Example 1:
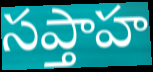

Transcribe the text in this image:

సప్తాహ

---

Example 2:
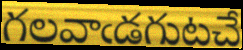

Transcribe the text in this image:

గలవాఁడగుటచే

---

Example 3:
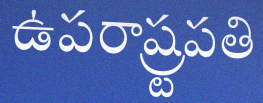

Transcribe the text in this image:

ఉపరాష్ర్టపతి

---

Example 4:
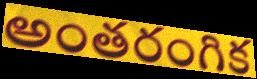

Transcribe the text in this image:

అంతరంగిక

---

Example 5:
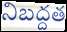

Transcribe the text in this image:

నిబద్దత